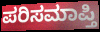
ಪರಿಸಮಾಪ್ತಿ